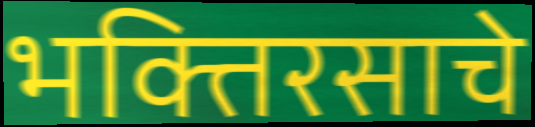
भक्तिरसाचे